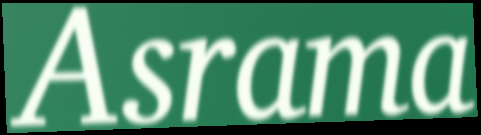
Asrama